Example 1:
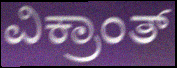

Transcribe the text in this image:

ವಿಕ್ರಾಂತ್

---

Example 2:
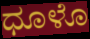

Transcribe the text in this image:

ಧೂಳೊ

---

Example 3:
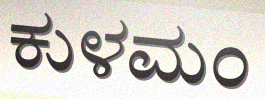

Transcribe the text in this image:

ಕುಳಮಂ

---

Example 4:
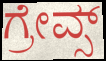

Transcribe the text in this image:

ಗ್ರೇವ್ಸ್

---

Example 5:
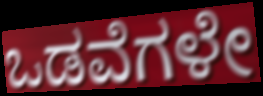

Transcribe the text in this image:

ಒಡವೆಗಳೇ